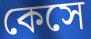
কেসে